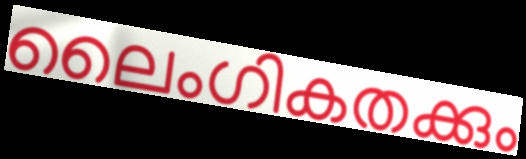
ലൈംഗികതക്കും